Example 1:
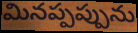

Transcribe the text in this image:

మినప్పప్పును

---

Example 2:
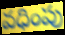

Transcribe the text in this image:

వధింపు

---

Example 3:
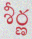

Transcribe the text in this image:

శీర్ణ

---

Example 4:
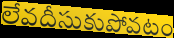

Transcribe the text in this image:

లేవదీసుకుపోవటం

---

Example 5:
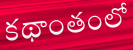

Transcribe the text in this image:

కథాంతంలో